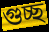
গুচ্ছ